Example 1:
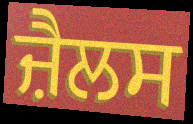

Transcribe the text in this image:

ਜ਼ੈਲਸ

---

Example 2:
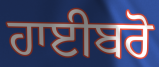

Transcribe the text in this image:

ਹਾਈਬਰੋ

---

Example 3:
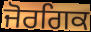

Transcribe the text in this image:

ਜੋਰਗਿਕ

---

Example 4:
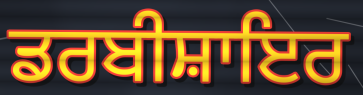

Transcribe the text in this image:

ਡਰਬੀਸ਼ਾਇਰ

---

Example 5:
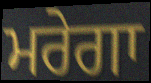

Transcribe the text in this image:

ਮਰੇਗਾ